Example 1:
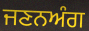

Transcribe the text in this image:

ਜਣਨਅੰਗ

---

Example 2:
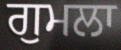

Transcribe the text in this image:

ਗੁਮਲਾ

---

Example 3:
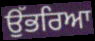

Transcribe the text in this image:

ਉੱਭਰਿਆ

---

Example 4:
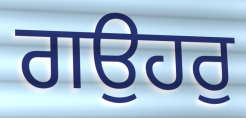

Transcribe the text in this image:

ਗਉਹਰੁ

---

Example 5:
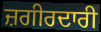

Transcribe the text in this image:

ਜ਼ਗੀਰਦਾਰੀ